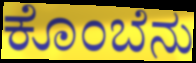
ಕೊಂಬೆನು